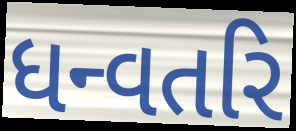
ધન્વતરિ